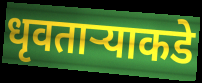
धृवतार्‍याकडे